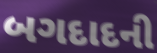
બગદાદની